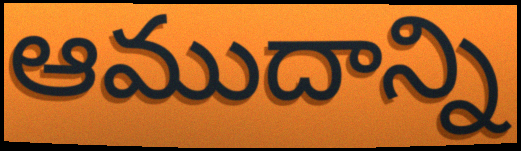
ఆముదాన్ని